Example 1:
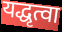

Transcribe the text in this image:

यद्धृत्वा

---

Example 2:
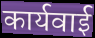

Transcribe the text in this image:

कार्यवाई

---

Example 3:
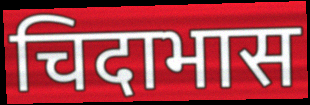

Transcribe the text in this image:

चिदाभास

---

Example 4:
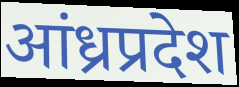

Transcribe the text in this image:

आंध्रप्रदेश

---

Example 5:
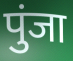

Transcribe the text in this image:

पुंजा